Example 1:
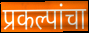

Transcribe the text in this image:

प्रकल्पांचा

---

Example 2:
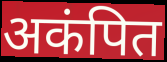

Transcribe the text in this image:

अकंपित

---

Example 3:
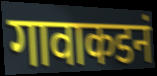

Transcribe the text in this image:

गावाकडनं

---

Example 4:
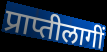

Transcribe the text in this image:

प्राप्तीलागीं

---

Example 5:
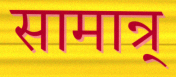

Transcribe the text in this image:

सामान्र्